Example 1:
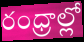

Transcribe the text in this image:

రంధ్రాల్లో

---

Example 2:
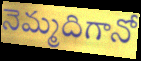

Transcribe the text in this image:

నెమ్మదిగానో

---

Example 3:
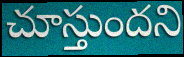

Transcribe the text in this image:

చూస్తుందని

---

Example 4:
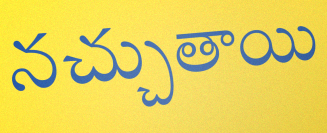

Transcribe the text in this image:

నచ్చుతాయి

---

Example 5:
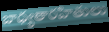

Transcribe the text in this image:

బాధ్యతారహితులు